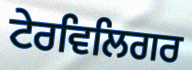
ਟੇਰਵਿਲਿਗਰ